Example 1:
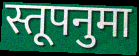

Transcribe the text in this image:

स्तूपनुमा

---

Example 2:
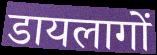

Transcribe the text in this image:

डायलागों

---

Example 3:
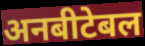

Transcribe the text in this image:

अनबीटेबल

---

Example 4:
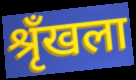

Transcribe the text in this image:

श्रृँखला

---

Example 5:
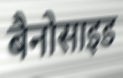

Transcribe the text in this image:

बैनोसाइड